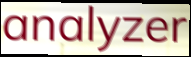
analyzer